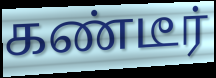
கண்டீர்